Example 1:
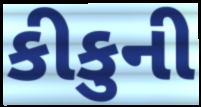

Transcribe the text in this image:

કીકુની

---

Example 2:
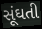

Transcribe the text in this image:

સૂંઘતી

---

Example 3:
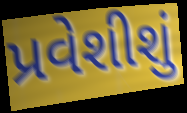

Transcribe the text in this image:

પ્રવેશીશું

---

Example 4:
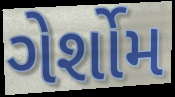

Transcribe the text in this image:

ગેર્શોમ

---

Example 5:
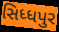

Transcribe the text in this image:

સિધ્ધપુર